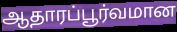
ஆதாரப்பூர்வமான